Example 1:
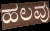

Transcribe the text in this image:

ಹಲವು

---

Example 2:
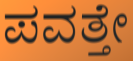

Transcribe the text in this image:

ಪವತ್ತೇ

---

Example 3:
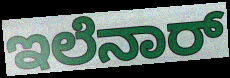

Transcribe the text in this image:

ಇಲೆನಾರ್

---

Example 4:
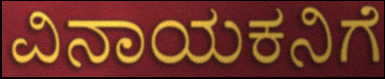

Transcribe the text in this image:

ವಿನಾಯಕನಿಗೆ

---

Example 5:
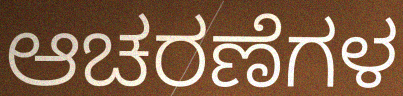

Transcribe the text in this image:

ಆಚರಣೆಗಳ